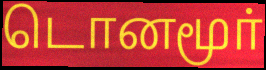
டொனமூர்